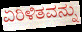
ಏರಿಳಿತವನ್ನು